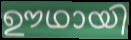
ഊഥായി